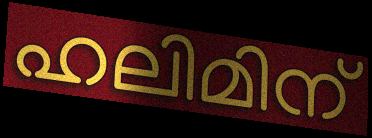
ഹലിമിന്